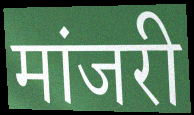
मांजरी